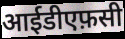
आईडीएफ़सी